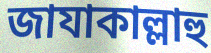
জাযাকাল্লাহু